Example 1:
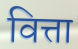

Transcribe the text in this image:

वित्ता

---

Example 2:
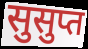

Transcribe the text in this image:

सुसुप्त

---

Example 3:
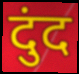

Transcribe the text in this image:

दुंद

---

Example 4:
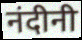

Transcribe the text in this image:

नंदीनी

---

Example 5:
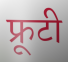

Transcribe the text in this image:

फ्रूटी